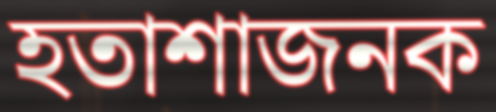
হতাশাজনক